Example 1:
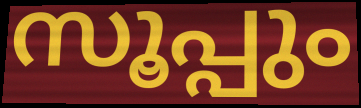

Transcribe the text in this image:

സൂപ്പും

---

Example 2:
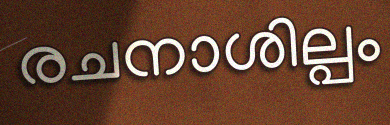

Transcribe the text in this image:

രചനാശില്പം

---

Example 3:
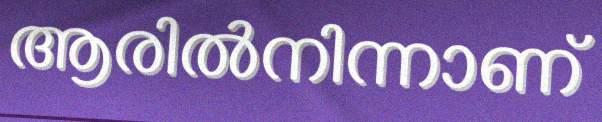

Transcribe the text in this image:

ആരിൽനിന്നാണ്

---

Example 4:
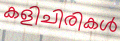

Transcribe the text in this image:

കളിചിരികൾ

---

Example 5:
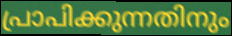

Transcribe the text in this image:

പ്രാപിക്കുന്നതിനും